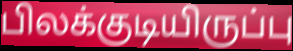
பிலக்குடியிருப்பு